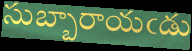
సుబ్బారాయఁడు